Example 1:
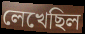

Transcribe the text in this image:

লেখেছিল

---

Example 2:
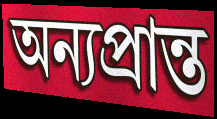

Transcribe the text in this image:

অন্যপ্রান্ত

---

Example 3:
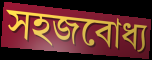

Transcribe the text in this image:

সহজবোধ্য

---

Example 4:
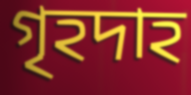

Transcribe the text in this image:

গৃহদাহ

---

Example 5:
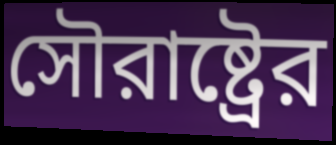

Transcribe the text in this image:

সৌরাষ্ট্রের